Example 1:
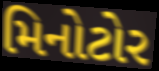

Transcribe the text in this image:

મિનોટોર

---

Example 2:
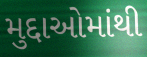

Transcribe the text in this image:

મુદ્દાઓમાંથી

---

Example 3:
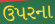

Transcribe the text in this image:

ઉપરના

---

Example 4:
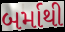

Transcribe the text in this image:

બર્માથી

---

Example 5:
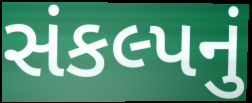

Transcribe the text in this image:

સંકલ્પનું